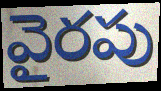
వైరపు